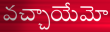
వచ్చాయేమో